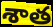
శాత